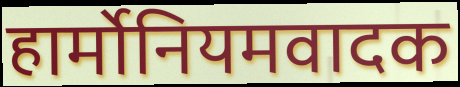
हार्मोनियमवादक